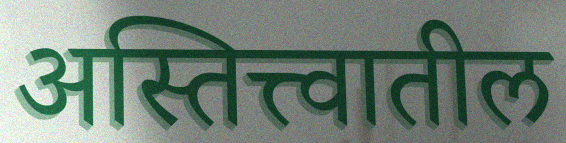
अस्तित्त्वातील